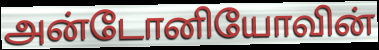
அன்டோனியோவின்